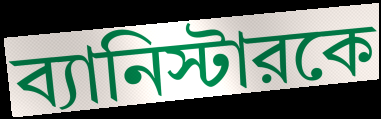
ব্যানিস্টারকে